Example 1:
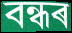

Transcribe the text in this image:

বন্ধৰ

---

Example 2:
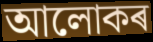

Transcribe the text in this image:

আলোকৰ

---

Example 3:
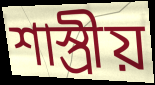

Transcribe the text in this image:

শাস্ত্ৰীয়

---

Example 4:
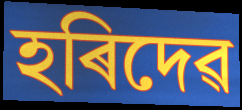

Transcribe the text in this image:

হৰিদেৱ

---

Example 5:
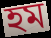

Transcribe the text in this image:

হম